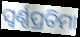
ସ୍ୱର୍ଣ୍ଣପ୍ରତିମା